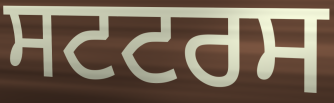
ਸਟਟਰਸ